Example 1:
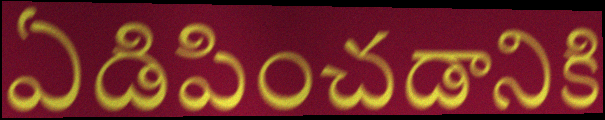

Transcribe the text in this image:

ఏడిపించడానికి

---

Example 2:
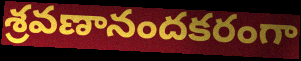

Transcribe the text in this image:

శ్రవణానందకరంగా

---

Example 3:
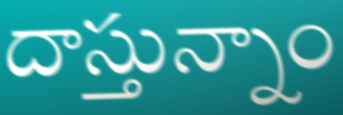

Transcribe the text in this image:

దాస్తున్నాం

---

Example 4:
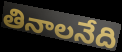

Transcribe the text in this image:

తినాలనేది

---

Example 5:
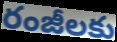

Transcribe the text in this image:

రంజీలకు